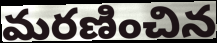
మరణించిన